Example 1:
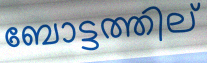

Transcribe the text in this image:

ബോട്ടത്തില്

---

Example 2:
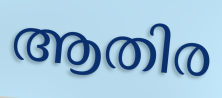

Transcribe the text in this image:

ആതിര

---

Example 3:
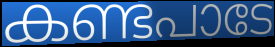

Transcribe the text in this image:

കണ്ടപാടേ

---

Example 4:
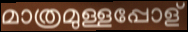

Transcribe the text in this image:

മാത്രമുള്ളപ്പോള്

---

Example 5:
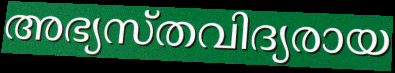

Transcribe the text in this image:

അഭ്യസ്തവിദ്യരായ